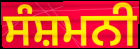
ਸੰਸ਼ਮਨੀ